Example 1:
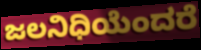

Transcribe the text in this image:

ಜಲನಿಧಿಯೆಂದರೆ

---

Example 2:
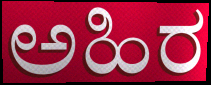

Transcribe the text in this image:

ಅಹಿರ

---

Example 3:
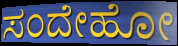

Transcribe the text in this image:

ಸಂದೇಹೋ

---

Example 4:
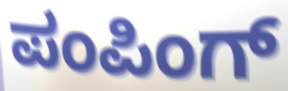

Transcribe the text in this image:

ಪಂಪಿಂಗ್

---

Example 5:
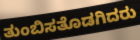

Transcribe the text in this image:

ತುಂಬಿಸತೊಡಗಿದರು